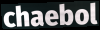
chaebol